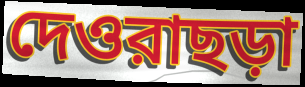
দেওরাছড়া